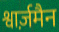
श्वार्ज़मैन